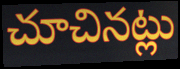
చూచినట్లు